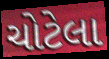
ચોટેલા